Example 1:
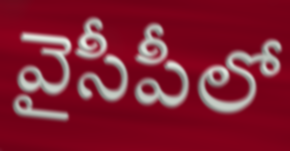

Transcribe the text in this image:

వైసీపీలో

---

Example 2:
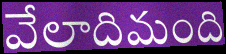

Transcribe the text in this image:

వేలాదిమంది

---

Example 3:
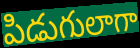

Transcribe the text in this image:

పిడుగులాగా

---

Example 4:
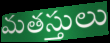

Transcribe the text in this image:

మతస్తులు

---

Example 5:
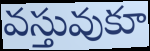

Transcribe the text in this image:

వస్తువుకూ